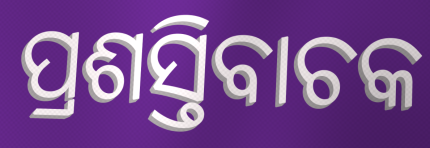
ପ୍ରଶସ୍ତିବାଚକ